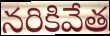
నరికివేత